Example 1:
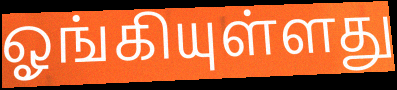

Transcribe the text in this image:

ஓங்கியுள்ளது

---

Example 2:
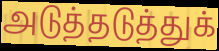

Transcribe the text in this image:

அடுத்தடுத்துக்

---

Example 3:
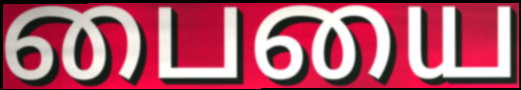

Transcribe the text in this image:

பையை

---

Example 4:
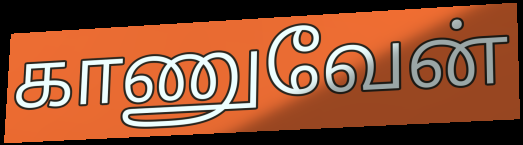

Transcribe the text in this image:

காணுவேன்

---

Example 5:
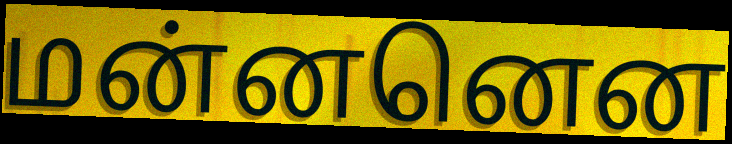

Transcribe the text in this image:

மன்னனென